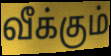
வீக்கும்